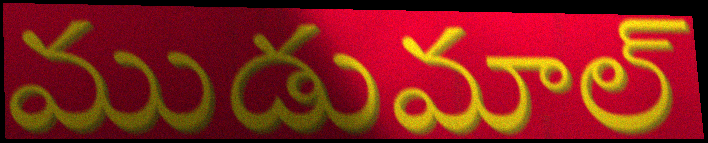
ముడుమాల్